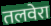
तलवेरा